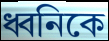
ধ্বনিকে